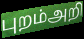
புறம்அறி